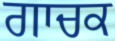
ਗਾਚਕ